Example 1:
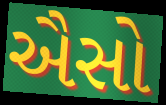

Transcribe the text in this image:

ઐસો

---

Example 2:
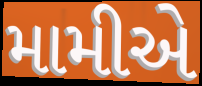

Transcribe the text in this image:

મામીએ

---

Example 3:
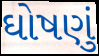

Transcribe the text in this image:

ઘોષણું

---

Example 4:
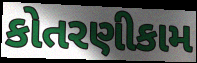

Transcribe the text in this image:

કોતરણીકામ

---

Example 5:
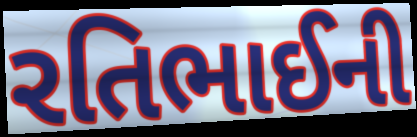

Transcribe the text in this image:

રતિભાઈની